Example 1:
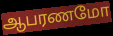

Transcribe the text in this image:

ஆபரணமோ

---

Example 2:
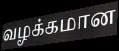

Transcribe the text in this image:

வழக்கமான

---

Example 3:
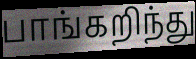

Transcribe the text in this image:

பாங்கறிந்து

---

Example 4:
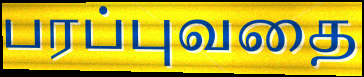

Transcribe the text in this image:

பரப்புவதை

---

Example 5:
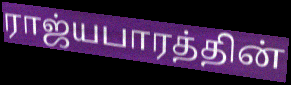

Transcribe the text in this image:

ராஜ்யபாரத்தின்